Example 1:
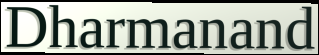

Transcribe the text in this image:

Dharmanand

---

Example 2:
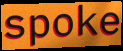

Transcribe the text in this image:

spoke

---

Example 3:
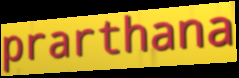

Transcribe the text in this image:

prarthana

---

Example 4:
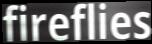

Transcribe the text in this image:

fireflies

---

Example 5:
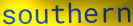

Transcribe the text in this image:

southern